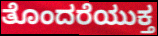
ತೊಂದರೆಯುಕ್ತ